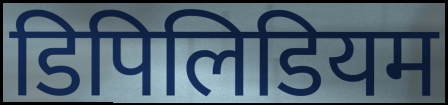
डिपिलिडियम